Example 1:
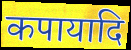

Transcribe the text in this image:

कपायादि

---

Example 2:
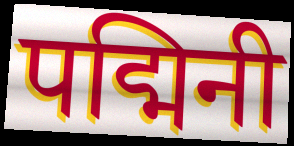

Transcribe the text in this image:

पद्मिनी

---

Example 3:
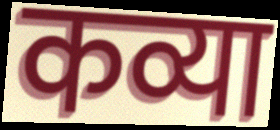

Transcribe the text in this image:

कव्या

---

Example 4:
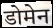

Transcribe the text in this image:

डोमेन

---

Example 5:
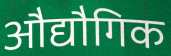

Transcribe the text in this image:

औद्यौगिक